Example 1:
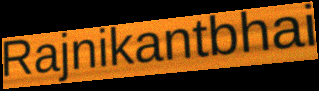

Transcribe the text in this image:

Rajnikantbhai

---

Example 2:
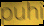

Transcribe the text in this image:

puhi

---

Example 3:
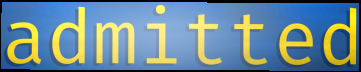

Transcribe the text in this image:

admitted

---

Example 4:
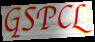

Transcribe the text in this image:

GSPCL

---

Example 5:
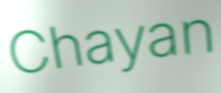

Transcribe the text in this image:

Chayan